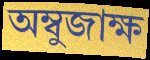
অম্বুজাক্ষ